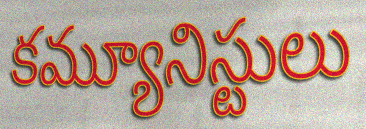
కమ్యూనిస్టులు